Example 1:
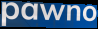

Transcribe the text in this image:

pawno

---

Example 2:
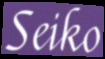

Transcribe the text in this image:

Seiko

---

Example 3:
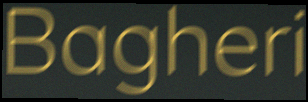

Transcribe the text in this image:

Bagheri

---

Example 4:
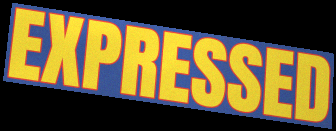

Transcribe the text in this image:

EXPRESSED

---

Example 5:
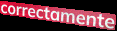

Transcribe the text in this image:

correctamente